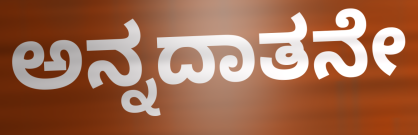
ಅನ್ನದಾತನೇ